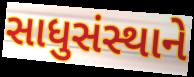
સાધુસંસ્થાને